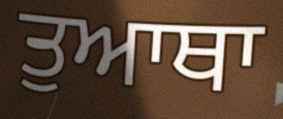
ਤੁਆਥਾ